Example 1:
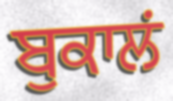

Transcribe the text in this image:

ਬੁਕਾਲਂ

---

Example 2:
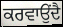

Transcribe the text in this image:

ਕਰਵਾਉਂਦੈ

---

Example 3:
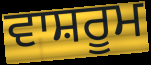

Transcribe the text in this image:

ਵਾਸ਼ਰੂਮ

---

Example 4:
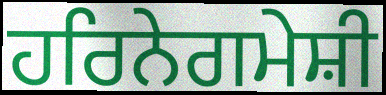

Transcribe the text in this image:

ਹਰਿਨੇਗਮੇਸ਼ੀ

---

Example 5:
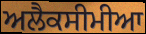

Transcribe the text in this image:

ਅਲੈਕਸੀਮੀਆ